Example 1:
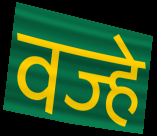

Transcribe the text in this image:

वज्हे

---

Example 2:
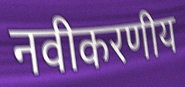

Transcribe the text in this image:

नवीकरणीय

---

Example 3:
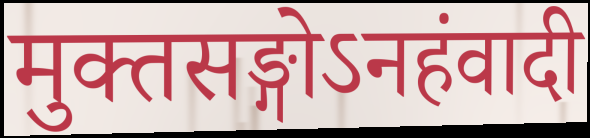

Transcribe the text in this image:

मुक्तसङ्गोऽनहंवादी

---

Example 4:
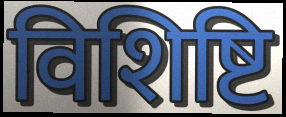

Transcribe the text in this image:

विशिष्टि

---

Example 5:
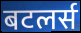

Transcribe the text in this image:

बटलर्स